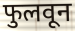
फुलवून